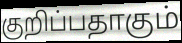
குறிப்பதாகும்